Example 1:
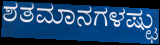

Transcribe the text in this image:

ಶತಮಾನಗಳಷ್ಟು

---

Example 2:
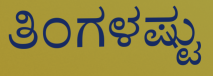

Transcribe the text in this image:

ತಿಂಗಳಷ್ಟು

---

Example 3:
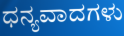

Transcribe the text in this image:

ಧನ್ಯವಾದಗಳು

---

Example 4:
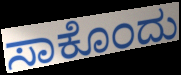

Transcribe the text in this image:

ಸಾಕೊಂದು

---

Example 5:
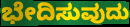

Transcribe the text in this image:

ಭೇದಿಸುವುದು